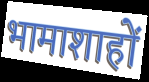
भामाशाहों